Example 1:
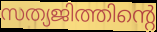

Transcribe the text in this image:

സത്യജിത്തിന്റെ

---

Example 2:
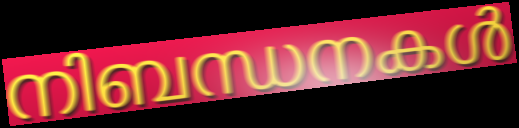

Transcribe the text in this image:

നിബന്ധനകൾ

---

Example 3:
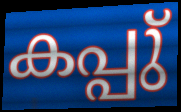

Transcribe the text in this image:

കപ്പു്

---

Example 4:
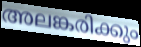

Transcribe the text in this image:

അലങ്കരിക്കും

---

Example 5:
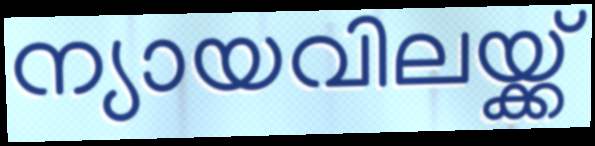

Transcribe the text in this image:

ന്യായവിലയ്ക്ക്